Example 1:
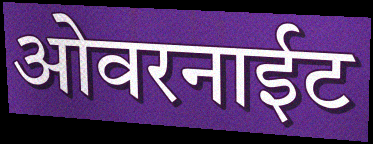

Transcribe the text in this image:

ओवरनाईट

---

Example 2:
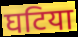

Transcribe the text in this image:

घटिया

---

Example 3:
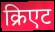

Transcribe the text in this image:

क्रिएट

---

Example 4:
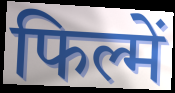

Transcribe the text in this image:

फिल्में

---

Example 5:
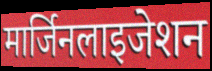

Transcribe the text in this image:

मार्जिनलाइजेशन